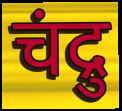
चंद्रु